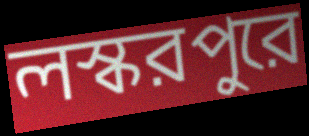
লস্করপুরে